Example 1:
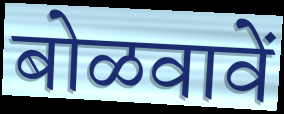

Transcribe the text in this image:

बोळवावें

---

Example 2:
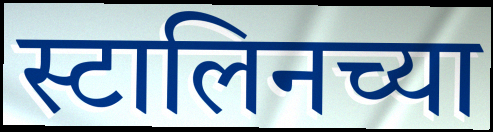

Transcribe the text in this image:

स्टालिनच्या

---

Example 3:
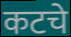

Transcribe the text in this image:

कटचे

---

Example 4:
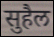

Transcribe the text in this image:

सुहैल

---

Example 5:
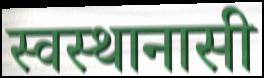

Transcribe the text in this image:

स्वस्थानासी